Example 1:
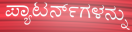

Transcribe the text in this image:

ಪ್ಯಾಟರ್ನ್‌ಗಳನ್ನು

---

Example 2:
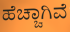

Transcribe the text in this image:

ಹೆಚ್ಚಾಗಿವೆ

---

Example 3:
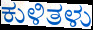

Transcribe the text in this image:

ಕುಳಿತಳು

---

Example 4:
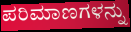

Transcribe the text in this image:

ಪರಿಮಾಣಗಳನ್ನು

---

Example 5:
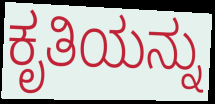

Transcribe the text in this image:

ಕೃತಿಯನ್ನು